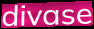
divase